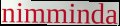
nimminda